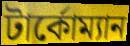
টার্কোম্যান